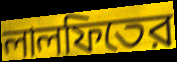
লালফিতের